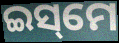
ଇସ୍‌ମେ